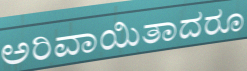
ಅರಿವಾಯಿತಾದರೂ